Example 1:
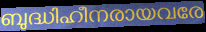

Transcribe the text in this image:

ബുദ്ധിഹീനരായവരേ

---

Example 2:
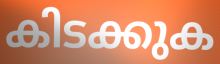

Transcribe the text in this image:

കിടക്കുക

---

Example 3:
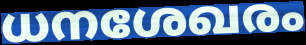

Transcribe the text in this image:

ധനശേഖരം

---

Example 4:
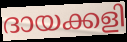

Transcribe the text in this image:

ദായക്കളി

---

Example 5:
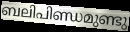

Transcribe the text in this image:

ബലിപിണ്ഡമുണ്ടു